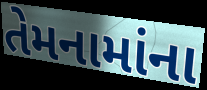
તેમનામાંના